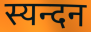
स्यन्दन